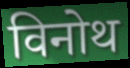
विनोथ